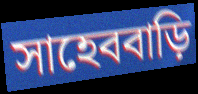
সাহেববাড়ি